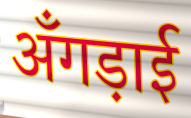
अँगड़ाई